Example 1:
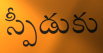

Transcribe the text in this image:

స్పీడుకు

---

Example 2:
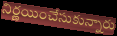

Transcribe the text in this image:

నిర్ణయించేసుకున్నారు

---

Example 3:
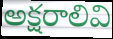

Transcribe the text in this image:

అక్షరాలివి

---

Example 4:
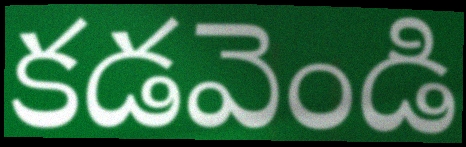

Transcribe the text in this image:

కడవెండి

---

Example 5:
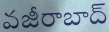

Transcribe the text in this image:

వజీరాబాద్